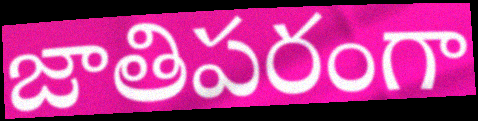
జాతిపరంగా